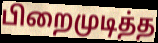
பிறைமுடித்த